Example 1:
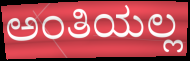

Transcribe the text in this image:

ಅಂತಿಯಲ್ಲ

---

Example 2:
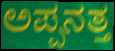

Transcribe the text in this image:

ಅಪ್ಪನತ್ತ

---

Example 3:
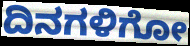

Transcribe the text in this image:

ದಿನಗಳಿಗೋ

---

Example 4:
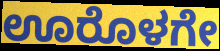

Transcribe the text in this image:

ಊರೊಳಗೇ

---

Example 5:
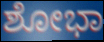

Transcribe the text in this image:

ಶೋಭಾ